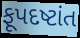
ફૂપદષ્ટાંત